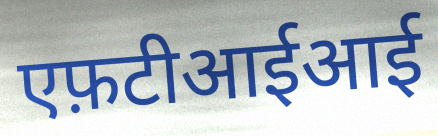
एफ़टीआईआई